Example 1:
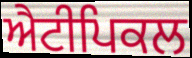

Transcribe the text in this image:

ਐਟੀਪਿਕਲ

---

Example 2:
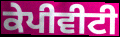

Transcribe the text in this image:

ਕੇਪੀਵੀਟੀ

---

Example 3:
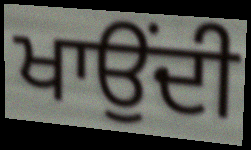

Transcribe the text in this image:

ਖਾਉਂਦੀ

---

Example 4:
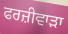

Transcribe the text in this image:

ਫਰਜ਼ੀਵਾਡ਼ਾ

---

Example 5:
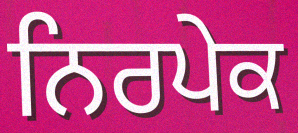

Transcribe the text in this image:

ਨਿਰਪੇਕ